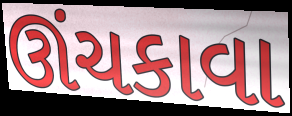
ઊંચકાવા